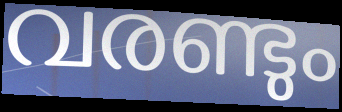
വരണ്ടും